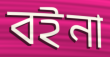
বইনা